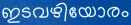
ഇടവഴിയോരം